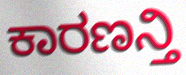
ಕಾರಣನ್ತಿ